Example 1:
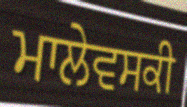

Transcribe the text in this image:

ਮਾਲੇਵਸਕੀ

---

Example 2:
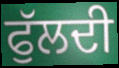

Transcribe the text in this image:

ਫੁੱਲਦੀ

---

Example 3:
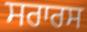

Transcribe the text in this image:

ਸਰਾਰਸ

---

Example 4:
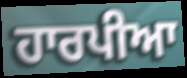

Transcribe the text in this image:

ਹਾਰਪੀਆ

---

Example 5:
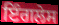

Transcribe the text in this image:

ਇੰਗਲੇਸ